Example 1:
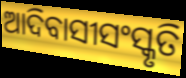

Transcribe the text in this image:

ଆଦିବାସୀସଂସ୍କୃତି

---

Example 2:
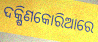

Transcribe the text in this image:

ଦକ୍ଷିଣକୋରିଆରେ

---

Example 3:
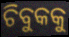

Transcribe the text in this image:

ଚିବୁକକୁ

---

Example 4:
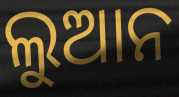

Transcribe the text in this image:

ଲୁଆନ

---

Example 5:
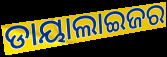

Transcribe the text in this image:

ଡାୟାଲାଇଜର